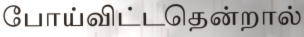
போய்விட்டதென்றால்